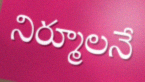
నిర్మూలనే